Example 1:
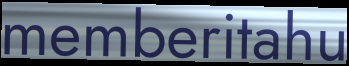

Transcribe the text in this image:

memberitahu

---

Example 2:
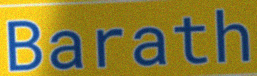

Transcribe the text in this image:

Barath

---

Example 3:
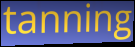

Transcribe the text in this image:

tanning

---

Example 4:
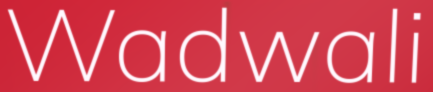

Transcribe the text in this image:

Wadwali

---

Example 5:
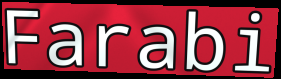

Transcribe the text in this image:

Farabi